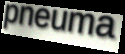
pneuma